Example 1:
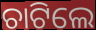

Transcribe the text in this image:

ଚାଟିଲେ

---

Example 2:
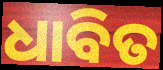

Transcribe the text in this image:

ଧାବିତ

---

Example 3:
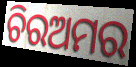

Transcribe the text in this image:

ଚିରଅମର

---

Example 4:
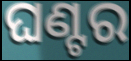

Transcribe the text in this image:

ଘଣ୍ଟର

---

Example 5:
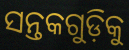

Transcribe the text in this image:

ସନ୍ତକଗୁଡ଼ିକୁ